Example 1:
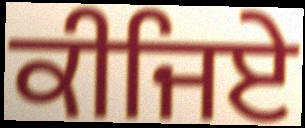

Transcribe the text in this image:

ਕੀਜਿਏ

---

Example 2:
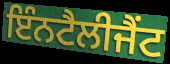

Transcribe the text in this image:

ਇੰਨਟੈਲੀਜੈਂਟ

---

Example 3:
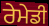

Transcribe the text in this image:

ਰੇਮੇਡੀ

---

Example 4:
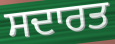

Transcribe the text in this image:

ਸਦਾਰਤ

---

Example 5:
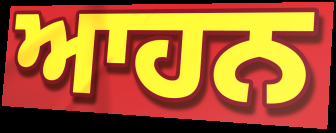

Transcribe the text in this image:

ਆਹਨ